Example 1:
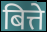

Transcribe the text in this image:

बित्ते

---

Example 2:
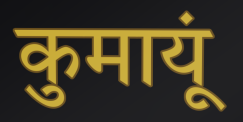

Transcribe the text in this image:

कुमायूं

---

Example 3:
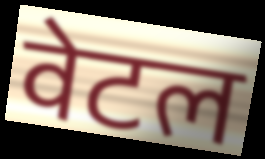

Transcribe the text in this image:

वेटल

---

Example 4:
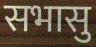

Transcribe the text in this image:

सभासु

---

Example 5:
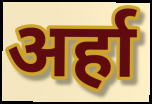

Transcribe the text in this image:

अर्हा